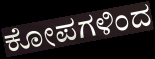
ಕೋಪಗಳಿಂದ